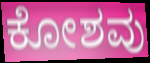
ಕೋಶವು